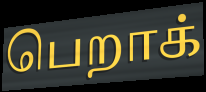
பெறாக்